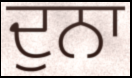
ਦੁਨਾ